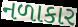
નળાકાર